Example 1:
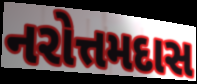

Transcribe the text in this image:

નરોત્તમદાસ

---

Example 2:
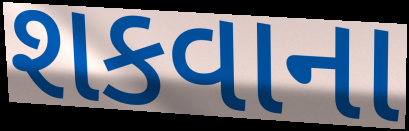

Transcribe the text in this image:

શકવાના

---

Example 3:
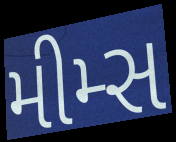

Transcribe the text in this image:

મીમ્સ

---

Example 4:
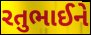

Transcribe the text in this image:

રતુભાઈને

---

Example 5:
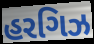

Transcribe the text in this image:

હરગિઝ